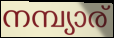
നമ്പ്യാര്